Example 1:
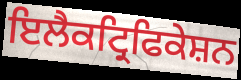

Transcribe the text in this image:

ਇਲੈਕਟ੍ਰਿਫਿਕੇਸ਼ਨ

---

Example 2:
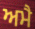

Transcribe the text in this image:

ਅਮੈ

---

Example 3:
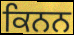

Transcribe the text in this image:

ਕਿਨਨ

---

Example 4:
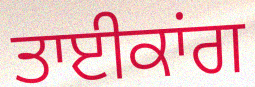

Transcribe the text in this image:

ਤਾਈਕਾਂਗ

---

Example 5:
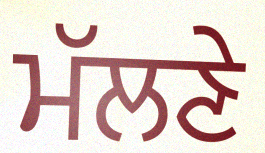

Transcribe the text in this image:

ਮੱਲਣੇ